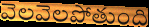
వెలవెలపోతుంది